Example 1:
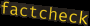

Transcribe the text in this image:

factcheck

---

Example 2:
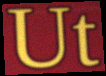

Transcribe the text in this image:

Ut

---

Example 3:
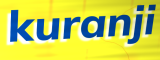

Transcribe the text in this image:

kuranji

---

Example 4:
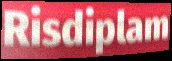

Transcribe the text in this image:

Risdiplam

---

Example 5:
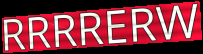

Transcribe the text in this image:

RRRRERW